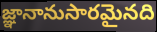
జ్ఞానానుసారమైనది